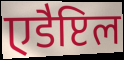
एडैप्टिल